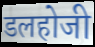
डलहोजी